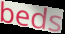
beds